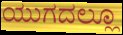
ಯುಗದಲ್ಲೂ